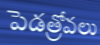
పెడత్రోవలు